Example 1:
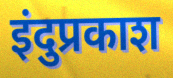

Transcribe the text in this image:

इंदुप्रकाश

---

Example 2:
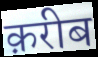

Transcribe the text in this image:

क़रीब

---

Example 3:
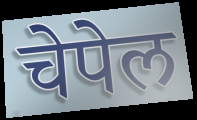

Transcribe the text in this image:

चेपेल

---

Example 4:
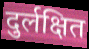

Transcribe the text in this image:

दुर्लक्षित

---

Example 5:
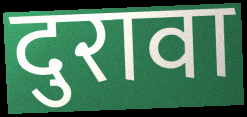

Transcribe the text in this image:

दुरावा